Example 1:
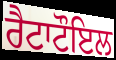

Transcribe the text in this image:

ਰੈਟਾਟੌਇਲ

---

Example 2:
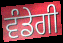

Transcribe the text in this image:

ਵੰਡੇਗੀ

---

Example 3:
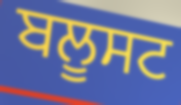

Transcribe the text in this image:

ਬਲੂਸਟ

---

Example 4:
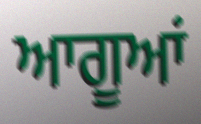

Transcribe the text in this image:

ਆਗੂਆਂ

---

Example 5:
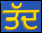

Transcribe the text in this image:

ਤੱਦ